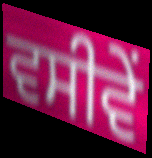
ਵਸੀਵੇਂ